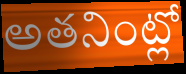
అతనింట్లో